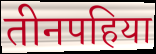
तीनपहिया